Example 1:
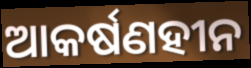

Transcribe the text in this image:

ଆକର୍ଷଣହୀନ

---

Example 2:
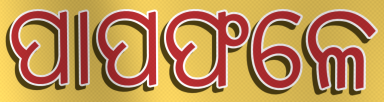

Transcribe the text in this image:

ପାପଫଳେ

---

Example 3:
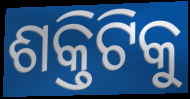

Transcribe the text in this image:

ଶକ୍ତିଟିକୁ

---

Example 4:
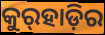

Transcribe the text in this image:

କୁର୍‍ହାଡ଼ିର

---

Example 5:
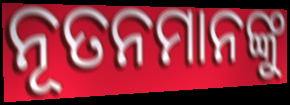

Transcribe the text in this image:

ନୂତନମାନଙ୍କୁ